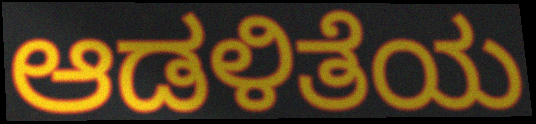
ಆಡಳಿತೆಯ